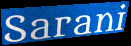
Sarani